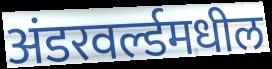
अंडरवर्ल्डमधील